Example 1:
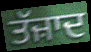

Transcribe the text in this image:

ਤੱਜ਼ਾਦ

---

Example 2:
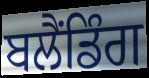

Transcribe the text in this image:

ਬਲੈਂਡਿੰਗ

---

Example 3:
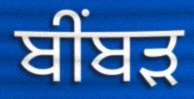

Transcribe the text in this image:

ਬੀਂਬੜ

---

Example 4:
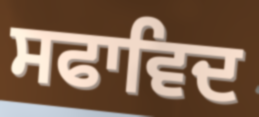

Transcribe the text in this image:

ਸਫਾਵਿਦ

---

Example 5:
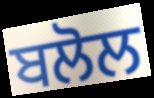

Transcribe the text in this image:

ਬਲੋਲ